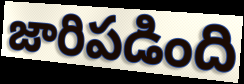
జారిపడింది